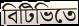
বিটিভিতে